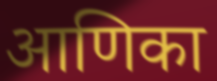
आणिका